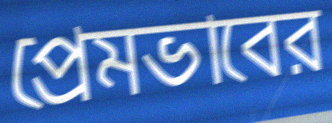
প্রেমভাবের